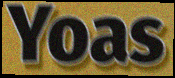
Yoas